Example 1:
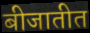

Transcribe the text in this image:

बीजातीत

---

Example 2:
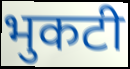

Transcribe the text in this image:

भुकटी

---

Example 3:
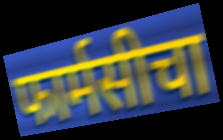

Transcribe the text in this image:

फार्मसीचा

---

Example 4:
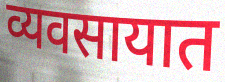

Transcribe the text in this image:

व्यवसायात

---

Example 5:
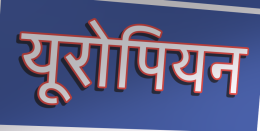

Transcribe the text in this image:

यूरोपियन